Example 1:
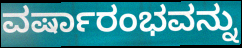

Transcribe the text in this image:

ವರ್ಷಾರಂಭವನ್ನು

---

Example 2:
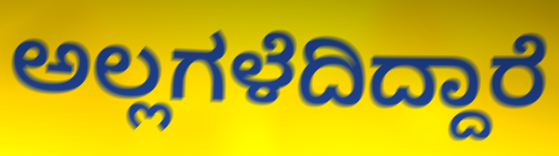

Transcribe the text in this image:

ಅಲ್ಲಗಳೆದಿದ್ದಾರೆ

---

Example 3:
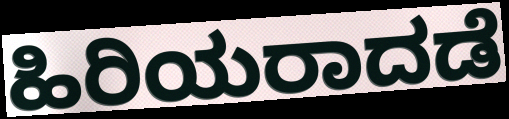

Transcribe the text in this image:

ಹಿರಿಯರಾದಡೆ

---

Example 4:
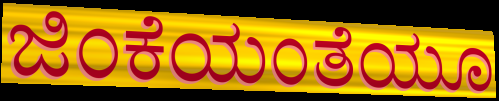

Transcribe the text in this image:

ಜಿಂಕೆಯಂತೆಯೂ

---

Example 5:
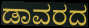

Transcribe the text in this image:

ಡಾವರದ